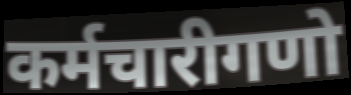
कर्मचारीगणो